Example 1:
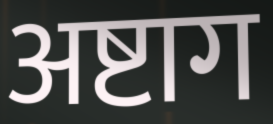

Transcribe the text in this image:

अष्टाग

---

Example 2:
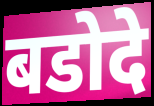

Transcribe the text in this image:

बडोदे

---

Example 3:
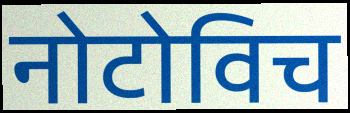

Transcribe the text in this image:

नोटोविच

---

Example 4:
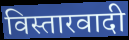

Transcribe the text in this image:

विस्तारवादी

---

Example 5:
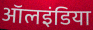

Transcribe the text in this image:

ऑलइंडिया